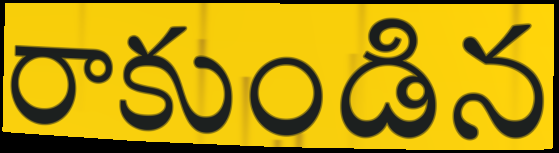
రాకుండిన